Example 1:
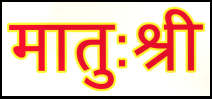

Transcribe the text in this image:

मातुःश्री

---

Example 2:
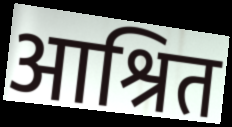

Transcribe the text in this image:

आश्रित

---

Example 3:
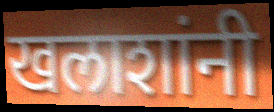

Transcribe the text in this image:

खलाशांनी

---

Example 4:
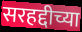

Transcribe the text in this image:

सरहद्दीच्या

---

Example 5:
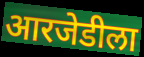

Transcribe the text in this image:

आरजेडीला